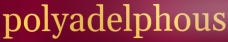
polyadelphous